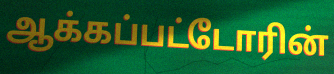
ஆக்கப்பட்டோரின்